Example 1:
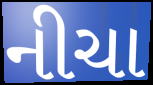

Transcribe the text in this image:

નીચા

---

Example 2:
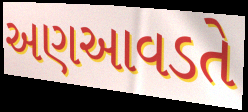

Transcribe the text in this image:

અણઆવડતે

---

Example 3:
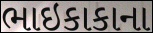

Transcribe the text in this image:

ભાઇકાકાના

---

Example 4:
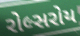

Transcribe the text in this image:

રોલ્સરોય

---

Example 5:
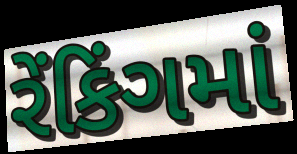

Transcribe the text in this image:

રેંકિંગમાં